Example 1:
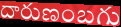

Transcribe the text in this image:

దారుణంబగు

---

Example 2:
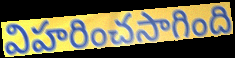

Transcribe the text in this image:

విహరించసాగింది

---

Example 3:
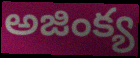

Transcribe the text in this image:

అజింక్య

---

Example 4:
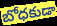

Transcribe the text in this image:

బోధకుడా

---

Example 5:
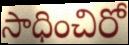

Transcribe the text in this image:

సాధించిరో